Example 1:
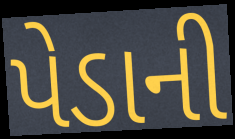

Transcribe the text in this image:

પેડાની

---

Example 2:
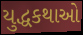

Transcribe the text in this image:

યુદ્ધકથાઓ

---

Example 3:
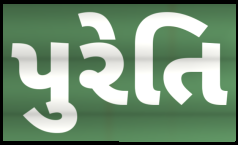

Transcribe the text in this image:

પુરેતિ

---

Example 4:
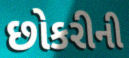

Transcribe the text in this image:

છોકરીની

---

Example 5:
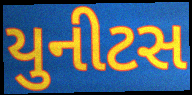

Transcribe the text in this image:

યુનીટસ